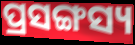
ପ୍ରସଙ୍ଗସ୍ୟ